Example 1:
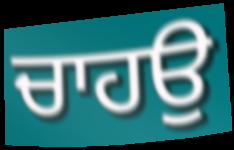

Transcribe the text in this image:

ਚਾਹਉ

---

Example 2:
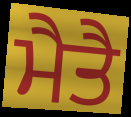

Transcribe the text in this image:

ਮੈਤੈ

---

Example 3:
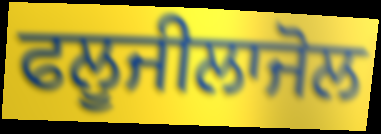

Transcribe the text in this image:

ਫਲੂਜੀਲਾਜੋਲ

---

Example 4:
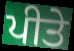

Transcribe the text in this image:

ਪੀਤੇ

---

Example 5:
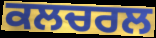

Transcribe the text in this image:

ਕਲਚਰਲ